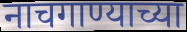
नाचगाण्याच्या